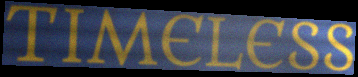
TIMELESS